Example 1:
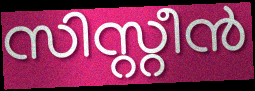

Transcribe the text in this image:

സിസ്റ്റീൻ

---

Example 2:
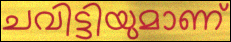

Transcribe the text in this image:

ചവിട്ടിയുമാണ്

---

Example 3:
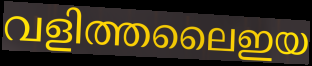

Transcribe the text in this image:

വളിത്തലൈഇയ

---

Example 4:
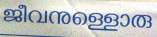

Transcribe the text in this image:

ജീവനുള്ളൊരു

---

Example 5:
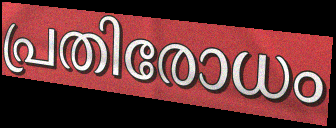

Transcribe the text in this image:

പ്രതിരോധം